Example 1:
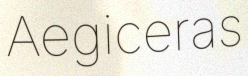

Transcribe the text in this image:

Aegiceras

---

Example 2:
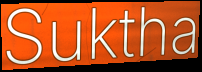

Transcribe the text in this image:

Suktha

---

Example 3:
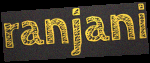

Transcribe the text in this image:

ranjani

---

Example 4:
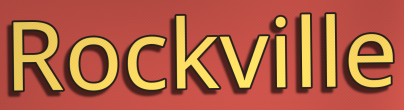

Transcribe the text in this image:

Rockville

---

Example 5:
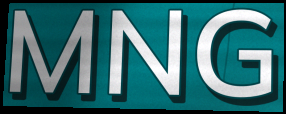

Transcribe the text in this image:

MNG